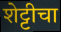
शेट्टीचा